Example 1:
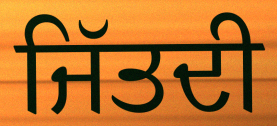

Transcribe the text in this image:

ਜਿੱਤਦੀ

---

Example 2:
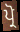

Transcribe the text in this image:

ਪ੍ਰੋ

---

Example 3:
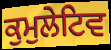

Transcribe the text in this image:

ਕੁਮੁਲੇਟਿਵ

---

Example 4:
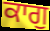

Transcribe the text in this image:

ਕਾਗੁ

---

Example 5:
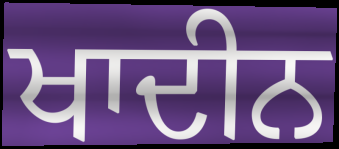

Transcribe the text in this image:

ਖਾਦੀਨ